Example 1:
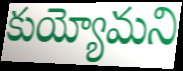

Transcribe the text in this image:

కుయ్యోమని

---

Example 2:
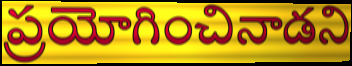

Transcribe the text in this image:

ప్రయోగించినాడని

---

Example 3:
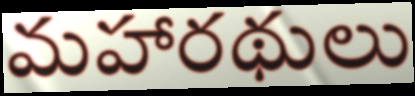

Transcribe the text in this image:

మహారథులు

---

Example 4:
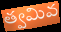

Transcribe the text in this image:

త్వమివ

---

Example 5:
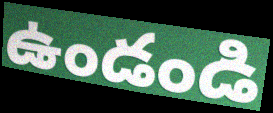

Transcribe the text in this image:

ఉండండి